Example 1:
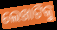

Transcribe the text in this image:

ଲେଖାଟିକୁ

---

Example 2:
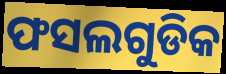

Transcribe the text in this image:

ଫସଲଗୁଡିକ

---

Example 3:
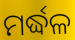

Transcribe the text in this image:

ମର୍ଦ୍ଧଳ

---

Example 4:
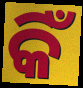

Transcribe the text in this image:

କିଁ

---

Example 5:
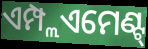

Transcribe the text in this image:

ଏମ୍ପ୍ଲଏମେଣ୍ଟ୍